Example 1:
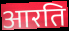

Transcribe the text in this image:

आरति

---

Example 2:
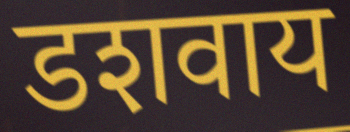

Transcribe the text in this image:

डशवाय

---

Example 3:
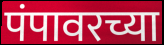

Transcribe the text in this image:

पंपावरच्या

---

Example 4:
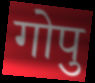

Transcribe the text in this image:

गोपु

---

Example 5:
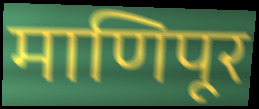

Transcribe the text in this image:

माणिपूर